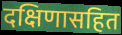
दक्षिणासहित